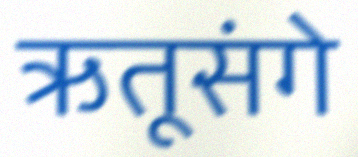
ऋतूसंगे